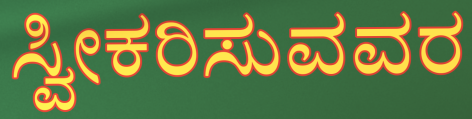
ಸ್ವೀಕರಿಸುವವರ